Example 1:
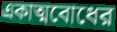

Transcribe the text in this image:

একাত্মবোধের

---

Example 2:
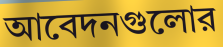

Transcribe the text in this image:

আবেদনগুলোর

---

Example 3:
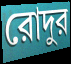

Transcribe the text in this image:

রোদুর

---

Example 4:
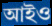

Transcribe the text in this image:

আইও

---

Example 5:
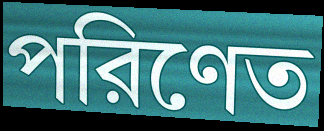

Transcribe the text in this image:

পরিণেত